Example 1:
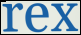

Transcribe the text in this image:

rex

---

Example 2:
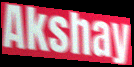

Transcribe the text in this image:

Akshay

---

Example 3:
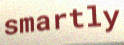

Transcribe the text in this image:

smartly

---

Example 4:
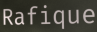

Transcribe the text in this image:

Rafique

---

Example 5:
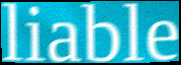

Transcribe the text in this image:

liable